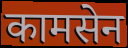
कामसेन